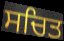
ਸਚਿਤ